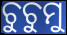
ଚୁଚୁମୁ